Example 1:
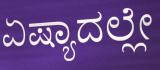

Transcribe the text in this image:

ಏಷ್ಯಾದಲ್ಲೇ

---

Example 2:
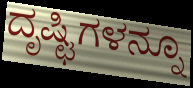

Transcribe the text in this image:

ದೃಷ್ಟಿಗಳನ್ನೂ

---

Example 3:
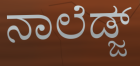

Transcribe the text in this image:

ನಾಲೆಡ್ಜ್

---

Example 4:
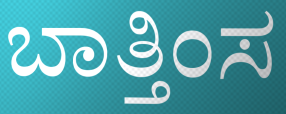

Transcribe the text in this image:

ಬಾತ್ತಿಂಸ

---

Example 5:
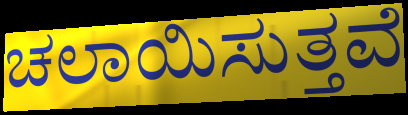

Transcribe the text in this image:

ಚಲಾಯಿಸುತ್ತವೆ